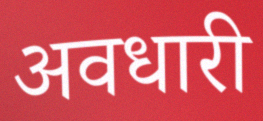
अवधारी